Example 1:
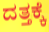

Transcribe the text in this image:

ದತ್ತಕ್ಕೆ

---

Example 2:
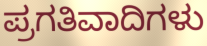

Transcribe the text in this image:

ಪ್ರಗತಿವಾದಿಗಳು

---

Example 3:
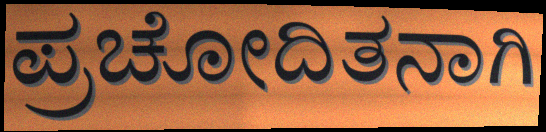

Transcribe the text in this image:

ಪ್ರಚೋದಿತನಾಗಿ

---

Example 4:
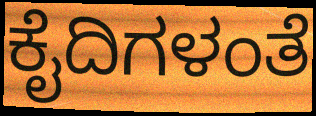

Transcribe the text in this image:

ಕೈದಿಗಳಂತೆ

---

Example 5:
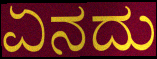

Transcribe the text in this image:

ಏನದು